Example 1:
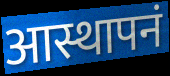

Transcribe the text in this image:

आस्थापनं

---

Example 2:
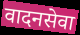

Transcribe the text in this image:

वादनसेवा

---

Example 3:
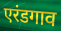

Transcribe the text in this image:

एरंडगाव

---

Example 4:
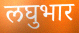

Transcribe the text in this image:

लघुभार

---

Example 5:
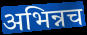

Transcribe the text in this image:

अभिन्नच